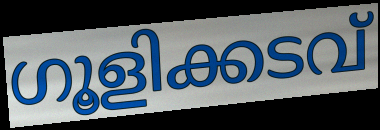
ഗൂളിക്കടവ്